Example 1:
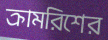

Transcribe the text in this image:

ক্রামরিশের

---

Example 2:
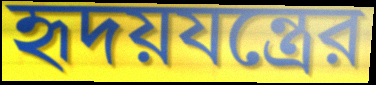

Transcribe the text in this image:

হৃদয়যন্ত্রের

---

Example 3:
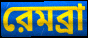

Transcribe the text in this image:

রেমব্রা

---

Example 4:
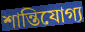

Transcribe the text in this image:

শান্তিযোগ্য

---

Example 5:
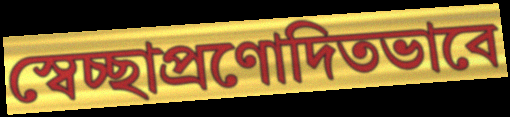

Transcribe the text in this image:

স্বেচ্ছাপ্রণোদিতভাবে